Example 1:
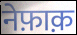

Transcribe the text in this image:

नेफ़ाक़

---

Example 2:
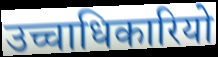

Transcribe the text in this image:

उच्चाधिकारियो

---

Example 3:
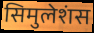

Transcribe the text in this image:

सिमुलेशंस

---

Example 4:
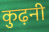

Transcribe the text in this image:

कुढ़नी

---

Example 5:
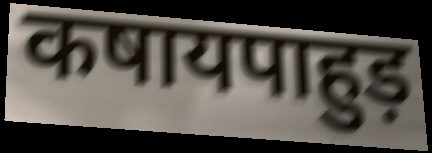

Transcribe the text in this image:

कषायपाहुड़